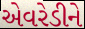
એવરેડીને